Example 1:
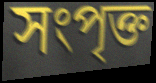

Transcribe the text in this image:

সংপৃক্ত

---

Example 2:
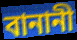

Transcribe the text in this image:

বানানী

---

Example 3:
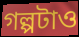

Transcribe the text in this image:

গল্পটাও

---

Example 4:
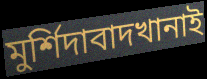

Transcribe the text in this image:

মুর্শিদাবাদখানাই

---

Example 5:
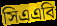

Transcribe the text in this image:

সিএএবি